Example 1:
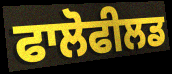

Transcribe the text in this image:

ਫਾਲੋਫੀਲਡ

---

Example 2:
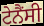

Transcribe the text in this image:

ਟੇਨੈਂਸੀ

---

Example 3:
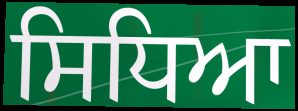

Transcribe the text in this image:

ਸਿਧਿਆ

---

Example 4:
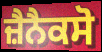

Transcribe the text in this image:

ਜ਼ੈਨੈਕਸੋ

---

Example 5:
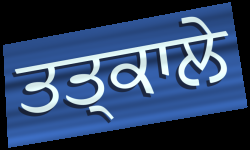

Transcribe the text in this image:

ਤਤ੍ਕਾਲੇ